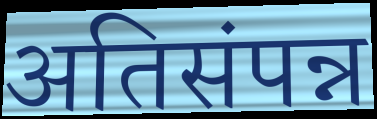
अतिसंपन्न